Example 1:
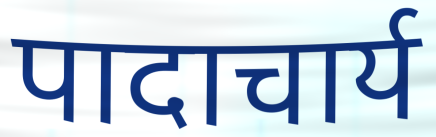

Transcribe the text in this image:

पादाचार्य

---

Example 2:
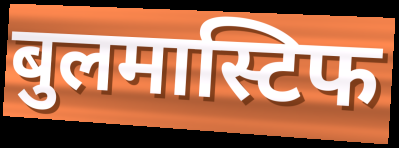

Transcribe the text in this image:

बुलमास्टिफ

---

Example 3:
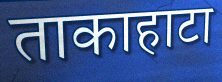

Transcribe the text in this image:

ताकाहाटा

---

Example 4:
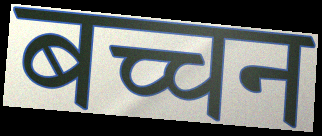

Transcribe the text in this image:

बच्‍चन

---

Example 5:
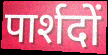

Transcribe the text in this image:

पार्शदों